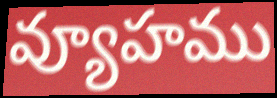
వ్యూహము